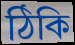
ঠিকি